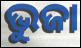
ଭୁଜା